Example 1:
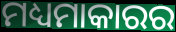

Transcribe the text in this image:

ମଧ୍ୟମାକାରର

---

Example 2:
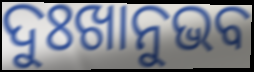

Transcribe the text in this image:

ଦୁଃଖାନୁଭବ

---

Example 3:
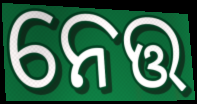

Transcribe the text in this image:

ନେତ୍ତ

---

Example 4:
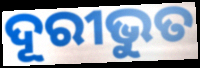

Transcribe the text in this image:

ଦୂରୀଭୁତ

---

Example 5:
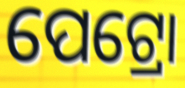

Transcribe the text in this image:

ପେଟ୍ରୋ